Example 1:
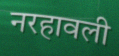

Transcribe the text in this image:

नरहावली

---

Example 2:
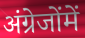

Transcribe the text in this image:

अंग्रेजोंमें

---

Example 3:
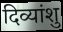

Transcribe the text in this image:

दिव्यांशु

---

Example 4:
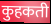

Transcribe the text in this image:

कुहकती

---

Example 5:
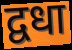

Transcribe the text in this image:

द्वधा